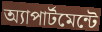
অ্যাপার্টমেন্টে